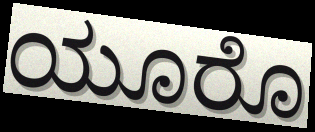
ಯೂರೊ